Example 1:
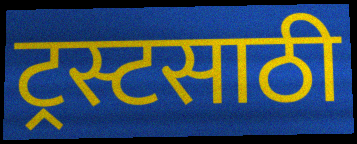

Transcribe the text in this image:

ट्रस्टसाठी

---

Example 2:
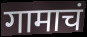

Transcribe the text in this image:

गामाचं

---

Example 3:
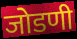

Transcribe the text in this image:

जोडणी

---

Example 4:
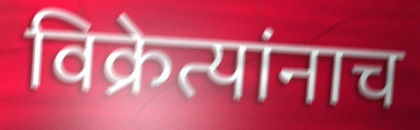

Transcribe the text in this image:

विक्रेत्यांनाच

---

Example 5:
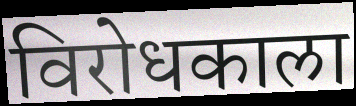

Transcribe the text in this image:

विरोधकाला